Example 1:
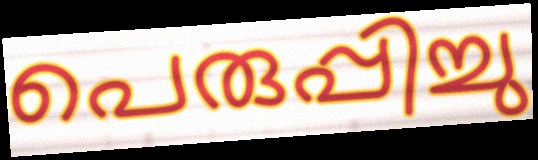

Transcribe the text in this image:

പെരുപ്പിച്ചു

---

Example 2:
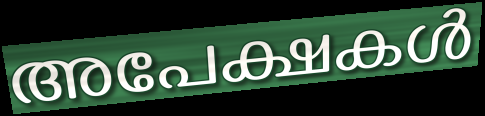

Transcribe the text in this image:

അപേക്ഷകൾ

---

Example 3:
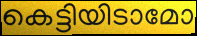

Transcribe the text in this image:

കെട്ടിയിടാമോ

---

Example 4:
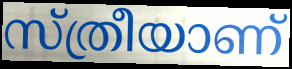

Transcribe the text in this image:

സ്ത്രീയാണ്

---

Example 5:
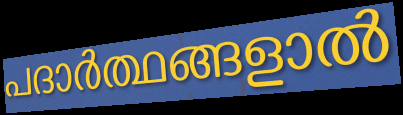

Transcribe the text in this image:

പദാർത്ഥങ്ങളാൽ